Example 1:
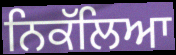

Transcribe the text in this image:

ਨਿਕੱਲਿਆ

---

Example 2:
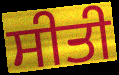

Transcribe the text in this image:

ਸੀਤੀ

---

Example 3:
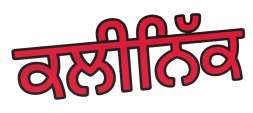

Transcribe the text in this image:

ਕਲੀਨਿੱਕ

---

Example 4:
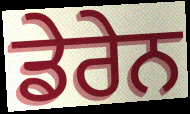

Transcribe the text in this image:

ਡੇਰੇਨ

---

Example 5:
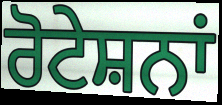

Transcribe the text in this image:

ਰੋਟੇਸ਼ਨਾਂ